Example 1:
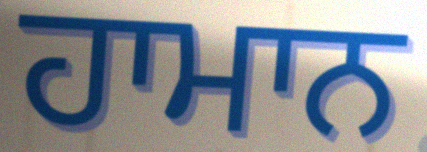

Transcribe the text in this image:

ਹਾਮਾਨ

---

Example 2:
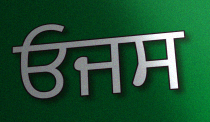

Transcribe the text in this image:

ਓਜਸ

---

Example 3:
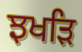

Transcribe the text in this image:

ਝਖੜਿ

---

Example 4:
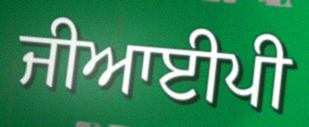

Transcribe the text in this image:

ਜੀਆਈਪੀ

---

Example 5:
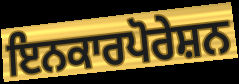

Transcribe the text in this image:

ਇਨਕਾਰਪੋਰੇਸ਼ਨ